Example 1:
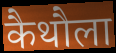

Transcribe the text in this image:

कैथौला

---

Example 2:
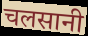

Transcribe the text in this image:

चलसानी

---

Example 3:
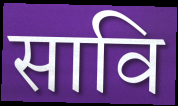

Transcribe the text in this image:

सावि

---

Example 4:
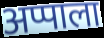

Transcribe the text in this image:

अप्पाला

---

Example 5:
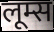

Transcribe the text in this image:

लूम्स